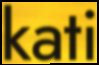
kati